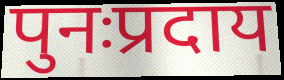
पुनःप्रदाय